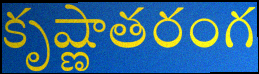
కృష్ణాతరంగ